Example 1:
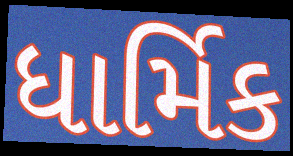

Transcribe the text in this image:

ધાર્મિક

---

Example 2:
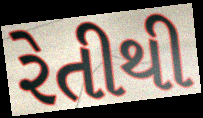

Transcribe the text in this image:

રેતીથી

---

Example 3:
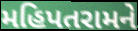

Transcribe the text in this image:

મહિપતરામને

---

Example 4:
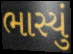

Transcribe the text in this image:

ભાસ્યું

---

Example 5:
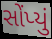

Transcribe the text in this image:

સોંપ્યું